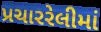
પ્રચારરેલીમાં